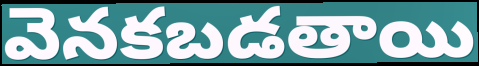
వెనకబడతాయి